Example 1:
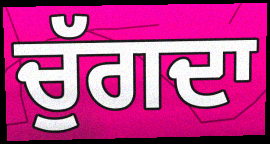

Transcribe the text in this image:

ਚੁੱਗਦਾ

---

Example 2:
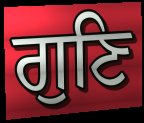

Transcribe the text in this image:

ਗੁਣਿ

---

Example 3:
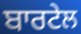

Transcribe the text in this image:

ਬਾਰਟੇਲ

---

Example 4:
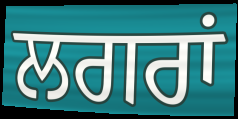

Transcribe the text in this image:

ਲਗਰਾਂ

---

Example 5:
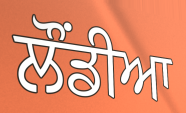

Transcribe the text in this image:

ਲੌਂਡੀਆ